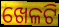
ଖେଳଟି